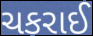
ચકરાઈ